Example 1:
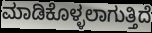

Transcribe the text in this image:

ಮಾಡಿಕೊಳ್ಳಲಾಗುತ್ತಿದೆ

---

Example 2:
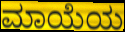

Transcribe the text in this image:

ಮಾಯೆಯ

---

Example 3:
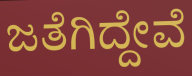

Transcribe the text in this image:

ಜತೆಗಿದ್ದೇವೆ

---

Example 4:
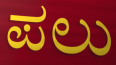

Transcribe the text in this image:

ಪಲು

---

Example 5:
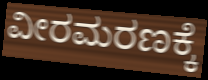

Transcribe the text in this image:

ವೀರಮರಣಕ್ಕೆ